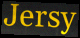
Jersy